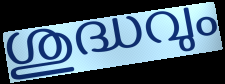
ശുദ്ധവും